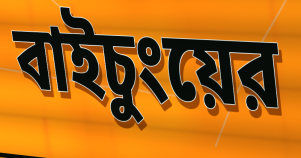
বাইচুংয়ের